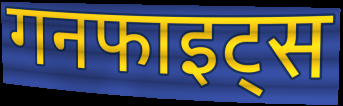
गनफाइट्स